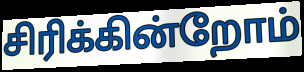
சிரிக்கின்றோம்